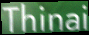
Thinai